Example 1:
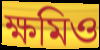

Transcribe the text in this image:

ক্ষমিও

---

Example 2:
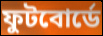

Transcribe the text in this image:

ফুটবোর্ডে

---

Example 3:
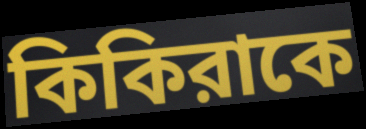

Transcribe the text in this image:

কিকিরাকে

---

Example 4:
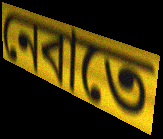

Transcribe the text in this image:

নেবাতে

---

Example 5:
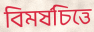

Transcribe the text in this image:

বিমর্ষচিত্তে